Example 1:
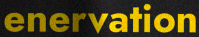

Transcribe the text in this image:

enervation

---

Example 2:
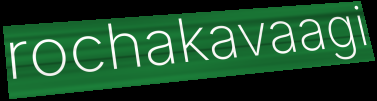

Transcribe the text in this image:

rochakavaagi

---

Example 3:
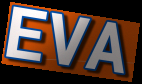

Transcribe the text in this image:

EVA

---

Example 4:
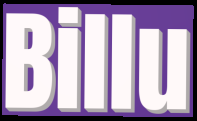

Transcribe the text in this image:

Billu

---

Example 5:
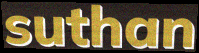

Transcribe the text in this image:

suthan